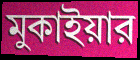
মুকাইয়ার